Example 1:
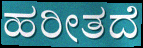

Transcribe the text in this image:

ಹರೀತದೆ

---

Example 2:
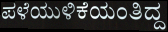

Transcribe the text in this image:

ಪಳೆಯುಳಿಕೆಯಂತಿದ್ದ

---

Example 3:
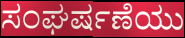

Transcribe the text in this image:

ಸಂಘರ್ಷಣೆಯು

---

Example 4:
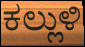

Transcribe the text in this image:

ಕಲ್ಲುಳಿ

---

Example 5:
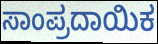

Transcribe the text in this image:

ಸಾಂಪ್ರದಾಯಿಕ